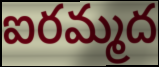
ఐరమ్మద